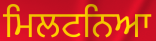
ਮਿਲਟਨਿਆ